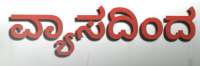
ವ್ಯಾಸದಿಂದ